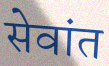
सेवांत